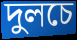
দুলচে